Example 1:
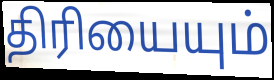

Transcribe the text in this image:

திரியையும்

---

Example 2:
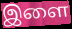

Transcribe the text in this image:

இளை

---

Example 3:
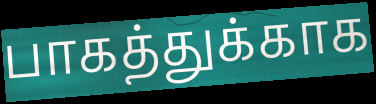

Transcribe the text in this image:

பாகத்துக்காக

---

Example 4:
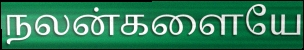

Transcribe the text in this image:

நலன்களையே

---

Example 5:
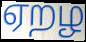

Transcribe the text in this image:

ஏறழ